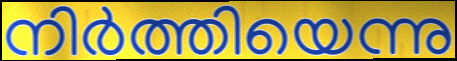
നിർത്തിയെന്നു